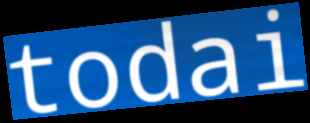
todai